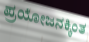
ಪ್ರಯೋಜನಕ್ಕಿಂತ